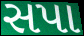
સપા